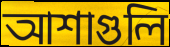
আশাগুলি